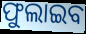
ଫୁଲାଇବ